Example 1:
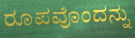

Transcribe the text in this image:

ರೂಪವೊಂದನ್ನು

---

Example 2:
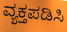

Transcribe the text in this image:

ವ್ಯಕ್ತಪಡಿಸಿ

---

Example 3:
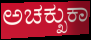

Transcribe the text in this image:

ಅಚಕ್ಖುಕಾ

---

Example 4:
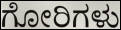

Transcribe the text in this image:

ಗೋರಿಗಳು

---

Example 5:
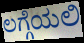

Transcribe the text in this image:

ಲಗ್ಗೆಯಲಿ